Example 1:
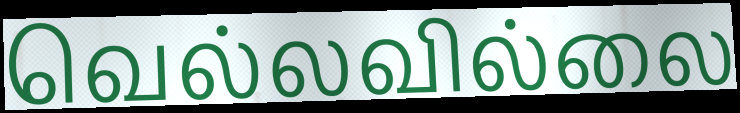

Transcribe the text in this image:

வெல்லவில்லை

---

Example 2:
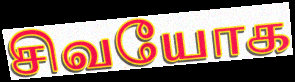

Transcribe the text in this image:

சிவயோக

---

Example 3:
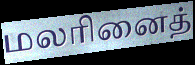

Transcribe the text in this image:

மலரினைத்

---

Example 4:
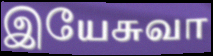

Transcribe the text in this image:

இயேசுவா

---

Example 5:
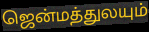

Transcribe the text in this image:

ஜென்மத்துலயும்